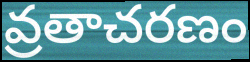
వ్రతాచరణం